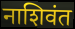
नाशिवंत